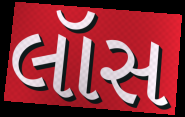
લૉસ